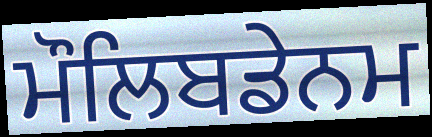
ਮੌਲਿਬਡੇਨਮ